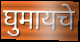
घुमायचे